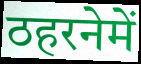
ठहरनेमें